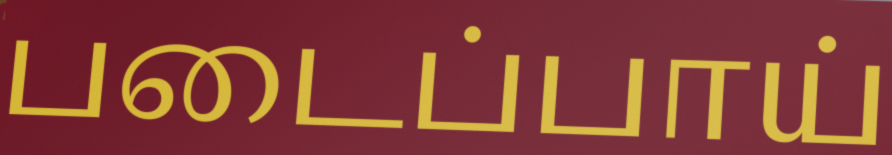
படைப்பாய்